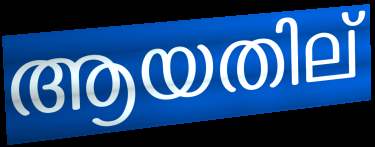
ആയതില്